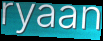
ryaan